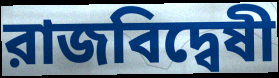
রাজবিদ্বেষী